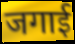
जगाई